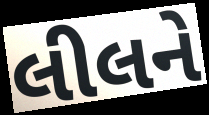
લીલને